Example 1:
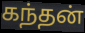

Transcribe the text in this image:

கந்தன்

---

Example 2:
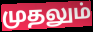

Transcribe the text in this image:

முதலும்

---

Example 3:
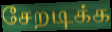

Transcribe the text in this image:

சேறடிக்க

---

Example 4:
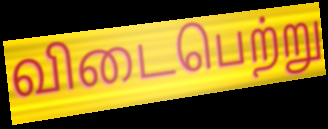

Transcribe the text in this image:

விடைபெற்று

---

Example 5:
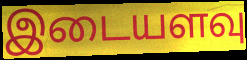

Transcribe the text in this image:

இடையளவு